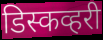
डिस्कव्हरी